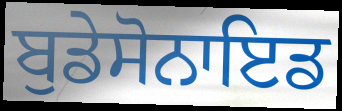
ਬੁਡੇਸੋਨਾਇਡ